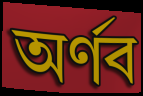
অর্ণব